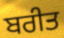
ਬਰੀਤ